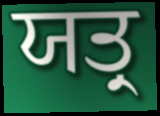
ਯਤ੍ਰ